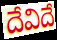
దేవిదే